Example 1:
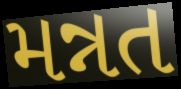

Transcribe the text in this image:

મન્નત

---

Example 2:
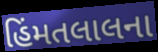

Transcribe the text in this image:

હિંમતલાલના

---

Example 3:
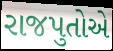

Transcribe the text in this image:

રાજપુતોએ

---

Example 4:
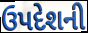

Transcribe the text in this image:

ઉપદેશની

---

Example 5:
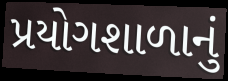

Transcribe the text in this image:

પ્રયોગશાળાનું